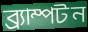
ব্র্যাম্পটন